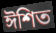
ঈশিত